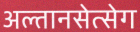
अल्तानसेत्सेग